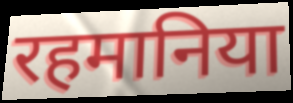
रहमानिया